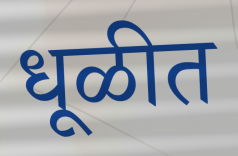
धूळीत